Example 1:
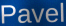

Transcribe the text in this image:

Pavel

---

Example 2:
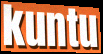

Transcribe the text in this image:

kuntu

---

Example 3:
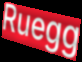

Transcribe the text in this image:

Ruegg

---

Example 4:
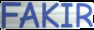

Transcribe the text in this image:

FAKIR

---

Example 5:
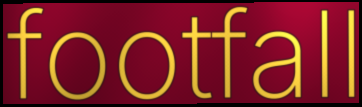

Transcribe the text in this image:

footfall